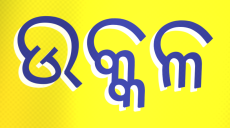
ଉକ୍କଳ